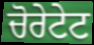
ਚੋਰੇਟੇਟ